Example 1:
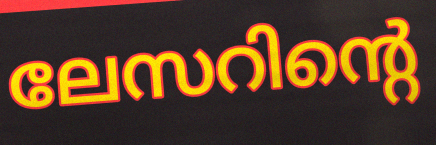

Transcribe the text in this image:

ലേസറിന്റെ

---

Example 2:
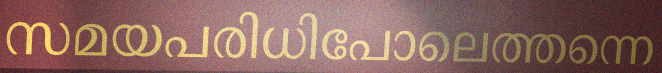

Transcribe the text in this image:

സമയപരിധിപോലെത്തന്നെ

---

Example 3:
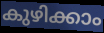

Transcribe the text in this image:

കുഴിക്കാം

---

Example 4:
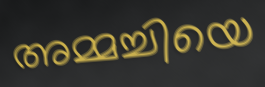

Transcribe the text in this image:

അമ്മച്ചിയെ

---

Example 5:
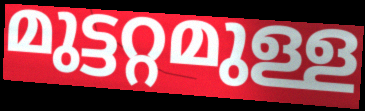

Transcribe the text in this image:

മുട്ടറ്റമുള്ള